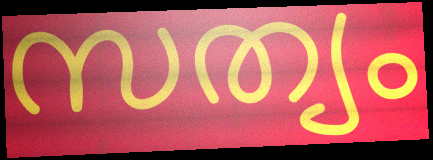
സത്യം